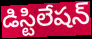
డిస్టిలేషన్